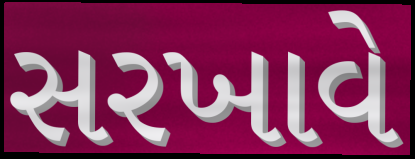
સરખાવે